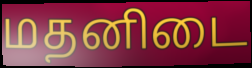
மதனிடை